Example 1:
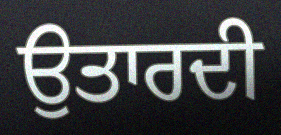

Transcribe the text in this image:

ਉਤਾਰਦੀ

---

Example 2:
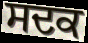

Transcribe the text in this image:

ਸਦਕ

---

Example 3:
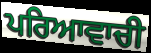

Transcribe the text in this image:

ਪਰਿਆਵਾਚੀ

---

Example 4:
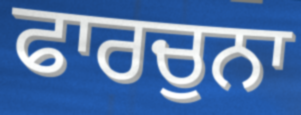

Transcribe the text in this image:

ਫਾਰਚੁਨਾ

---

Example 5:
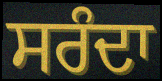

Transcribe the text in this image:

ਸਰੰਦਾ